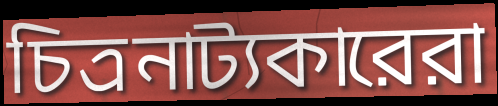
চিত্রনাট্যকারেরা